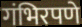
गंभिरपणे